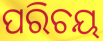
ପରିଚୟ